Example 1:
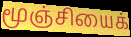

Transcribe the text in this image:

மூஞ்சியைக்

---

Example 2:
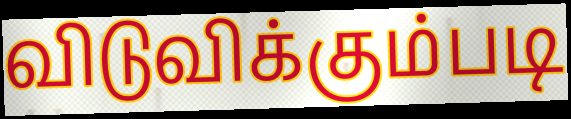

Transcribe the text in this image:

விடுவிக்கும்படி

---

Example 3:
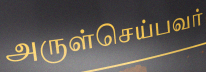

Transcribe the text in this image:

அருள்செய்பவர்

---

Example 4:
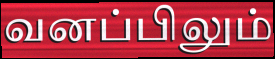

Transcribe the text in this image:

வனப்பிலும்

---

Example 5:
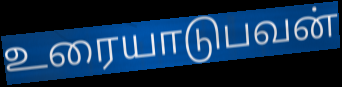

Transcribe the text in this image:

உரையாடுபவன்